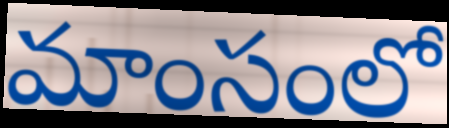
మాంసంలో